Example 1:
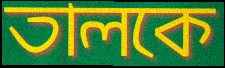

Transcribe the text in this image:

তালকে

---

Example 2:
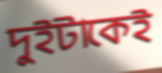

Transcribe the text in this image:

দুইটাকেই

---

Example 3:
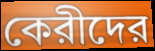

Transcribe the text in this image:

কেরীদের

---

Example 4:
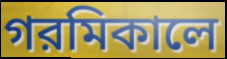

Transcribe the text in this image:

গরমিকালে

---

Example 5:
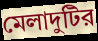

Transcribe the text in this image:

মেলাদুটির